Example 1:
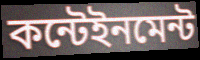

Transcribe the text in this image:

কন্টেইনমেন্ট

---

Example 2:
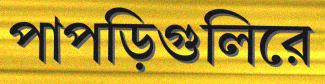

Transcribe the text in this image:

পাপড়িগুলিরে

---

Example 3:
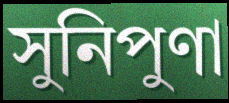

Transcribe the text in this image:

সুনিপুণা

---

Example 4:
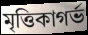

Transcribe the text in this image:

মৃত্তিকাগর্ভ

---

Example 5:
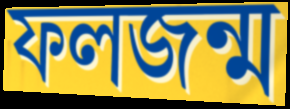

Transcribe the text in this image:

ফলজন্ম